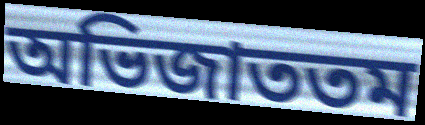
অভিজাততম